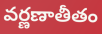
వర్ణణాతీతం